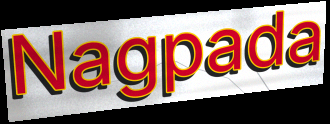
Nagpada